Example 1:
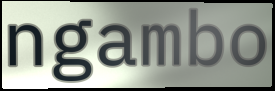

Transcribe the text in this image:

ngambo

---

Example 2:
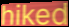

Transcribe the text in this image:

hiked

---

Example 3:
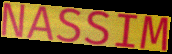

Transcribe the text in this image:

NASSIM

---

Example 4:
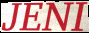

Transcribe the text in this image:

JENI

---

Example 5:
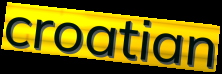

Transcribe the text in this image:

croatian